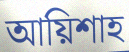
আয়িশাহ